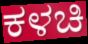
ಕಳಚಿ